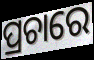
ପ୍ରଚାରେ